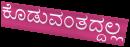
ಕೊಡುವಂತದ್ದಲ್ಲ